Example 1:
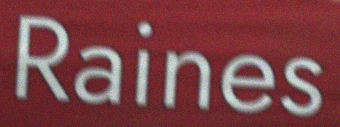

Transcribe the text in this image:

Raines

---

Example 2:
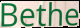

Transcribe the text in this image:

Bethe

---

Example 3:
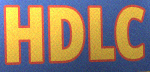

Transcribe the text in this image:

HDLC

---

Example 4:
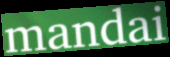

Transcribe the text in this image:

mandai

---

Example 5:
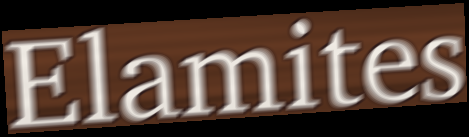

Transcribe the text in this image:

Elamites